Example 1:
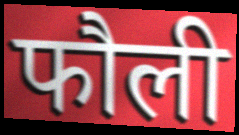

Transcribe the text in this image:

फौली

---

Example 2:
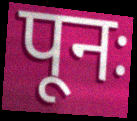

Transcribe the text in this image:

पूनः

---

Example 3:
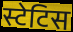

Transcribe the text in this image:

स्टेटिस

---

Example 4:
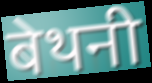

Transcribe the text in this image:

बेथनी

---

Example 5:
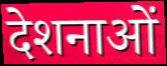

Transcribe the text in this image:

देशनाओं